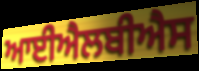
ਆਈਐਲਬੀਐਸ